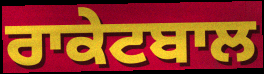
ਰਾਕੇਟਬਾਲ